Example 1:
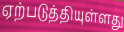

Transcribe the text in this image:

ஏற்படுத்தியுள்ளது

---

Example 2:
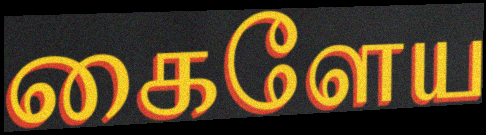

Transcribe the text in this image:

கைளேய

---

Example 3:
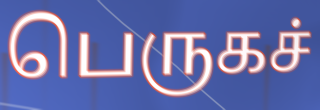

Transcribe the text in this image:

பெருகச்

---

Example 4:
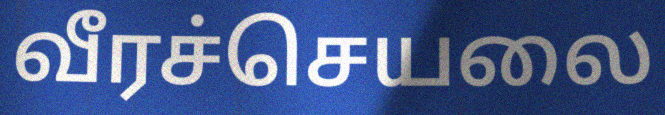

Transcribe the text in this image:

வீரச்செயலை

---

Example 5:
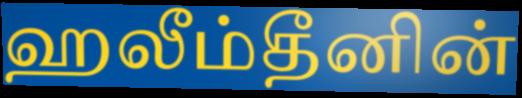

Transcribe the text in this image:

ஹலீம்தீனின்